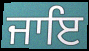
ਜਾਇ